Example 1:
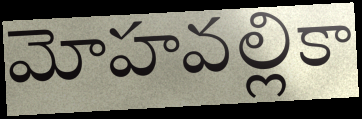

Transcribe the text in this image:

మోహవల్లికా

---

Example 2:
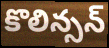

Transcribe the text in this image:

కొలిన్సన్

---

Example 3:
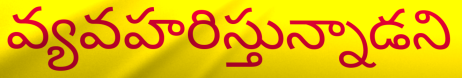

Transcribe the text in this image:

వ్యవహరిస్తున్నాడని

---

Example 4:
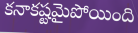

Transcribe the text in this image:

కనాకష్టమైపోయింది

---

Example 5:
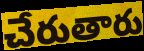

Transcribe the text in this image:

చేరుతారు